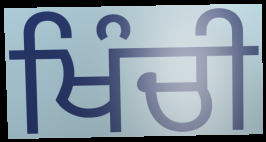
ਖਿੰਚੀ